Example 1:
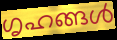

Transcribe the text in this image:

ഗൃഹങ്ങൾ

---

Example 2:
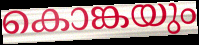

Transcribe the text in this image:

കൊങ്കയും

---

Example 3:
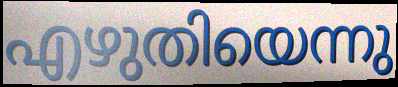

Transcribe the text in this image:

എഴുതിയെന്നു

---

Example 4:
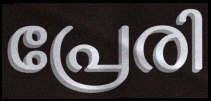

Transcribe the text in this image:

പ്രേരി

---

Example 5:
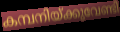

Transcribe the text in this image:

കമ്പനിയ്ക്കുവേണ്ടി